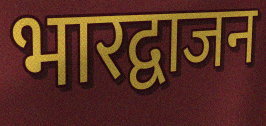
भारद्वाजन